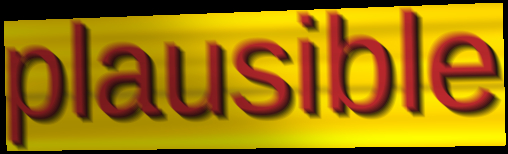
plausible